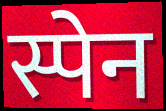
स्पेन